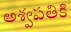
అశ్వపతికి